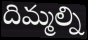
దిమ్మల్ని